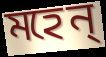
মহেন্